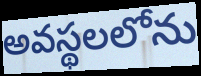
అవస్థలలోను